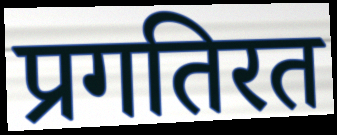
प्रगतिरत